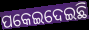
ପକେଇଦେଇଛି